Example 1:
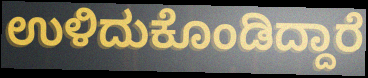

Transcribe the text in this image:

ಉಳಿದುಕೊಂಡಿದ್ದಾರೆ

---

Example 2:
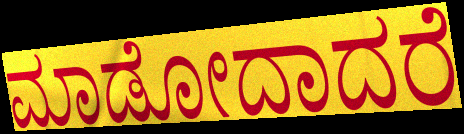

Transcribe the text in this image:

ಮಾಡೋದಾದರೆ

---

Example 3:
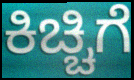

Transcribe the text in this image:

ಕಿಚ್ಚಿಗೆ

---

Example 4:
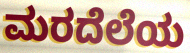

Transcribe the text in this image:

ಮರದೆಲೆಯ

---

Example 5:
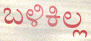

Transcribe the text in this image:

ಬಳಿಕಿಲ್ಲ